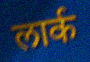
लार्क